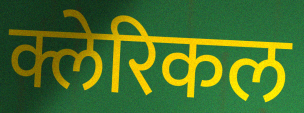
क्लेरिकल